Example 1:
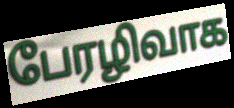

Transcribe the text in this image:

பேரழிவாக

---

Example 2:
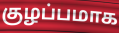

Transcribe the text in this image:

குழப்பமாக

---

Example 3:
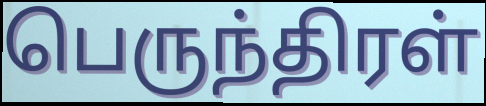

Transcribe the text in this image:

பெருந்திரள்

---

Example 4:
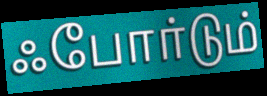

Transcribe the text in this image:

ஃபோர்டும்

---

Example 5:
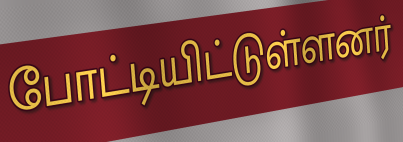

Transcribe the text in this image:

போட்டியிட்டுள்ளனர்